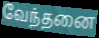
வேந்தனை